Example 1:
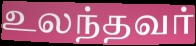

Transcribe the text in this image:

உலந்தவர்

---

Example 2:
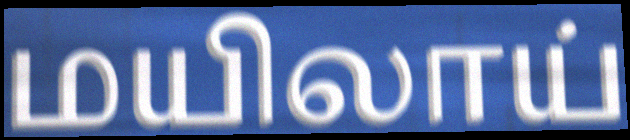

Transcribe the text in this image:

மயிலாய்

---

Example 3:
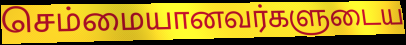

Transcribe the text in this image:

செம்மையானவர்களுடைய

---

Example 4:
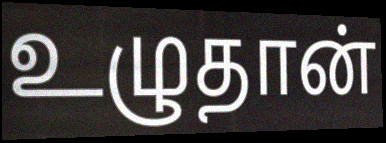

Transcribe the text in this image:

உழுதான்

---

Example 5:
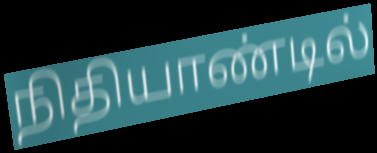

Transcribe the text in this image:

நிதியாண்டில்